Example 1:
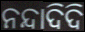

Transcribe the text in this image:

ନନ୍ଦାଦିଦି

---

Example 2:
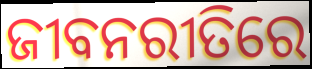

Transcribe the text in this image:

ଜୀବନରୀତିରେ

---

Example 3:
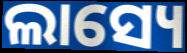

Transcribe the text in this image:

ଲାସ୍ୟେ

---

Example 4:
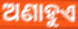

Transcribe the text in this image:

ଅଣାହୁଏ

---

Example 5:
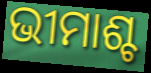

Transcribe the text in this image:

ଭୀମାଶ୍ଚ